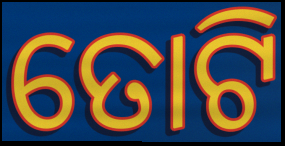
ତୋଟି